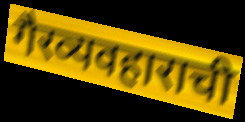
गैरव्यवहाराची